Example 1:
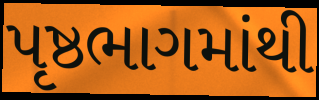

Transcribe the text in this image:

પૃષ્ઠભાગમાંથી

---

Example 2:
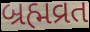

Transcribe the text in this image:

બ્રહ્મવ્રત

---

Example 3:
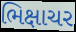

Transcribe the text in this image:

ભિક્ષાચર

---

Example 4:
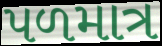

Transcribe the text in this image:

પળમાત્ર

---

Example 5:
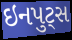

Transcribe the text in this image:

ઇનપુટ્સ